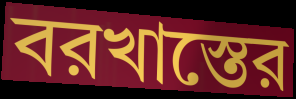
বরখাস্তের